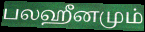
பலஹீனமும்